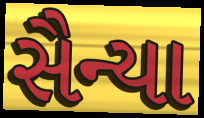
સૈન્યા